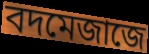
বদমেজাজে